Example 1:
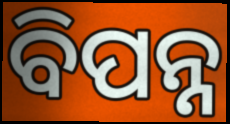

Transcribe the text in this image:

ବିପନ୍ନ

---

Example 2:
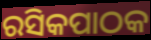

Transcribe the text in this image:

ରସିକପାଠକ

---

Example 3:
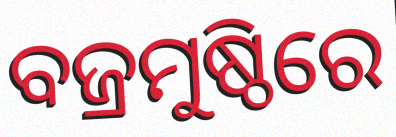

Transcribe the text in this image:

ବଜ୍ରମୁଷ୍ଠିରେ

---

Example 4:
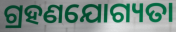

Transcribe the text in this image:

ଗ୍ରହଣଯୋଗ୍ୟତା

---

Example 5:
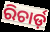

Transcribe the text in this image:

ରିଚାର୍ଡ଼